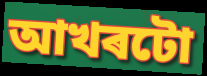
আখৰটো